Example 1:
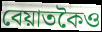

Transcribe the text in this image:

বেয়াতকৈও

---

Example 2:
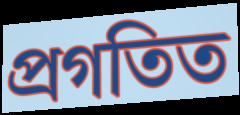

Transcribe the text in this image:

প্ৰগতিত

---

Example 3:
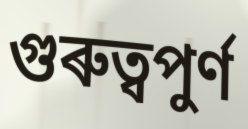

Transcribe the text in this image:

গুৰুত্বপুৰ্ণ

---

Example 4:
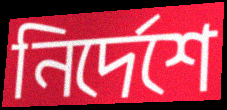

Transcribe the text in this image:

নিৰ্দেশে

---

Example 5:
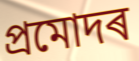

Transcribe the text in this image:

প্ৰমোদৰ